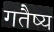
गतैष्य